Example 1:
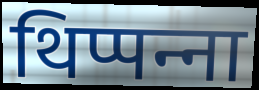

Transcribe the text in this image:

थिप्पन्ना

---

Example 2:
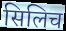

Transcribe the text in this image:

सिलिच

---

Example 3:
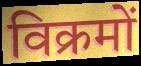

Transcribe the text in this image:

विक्रमों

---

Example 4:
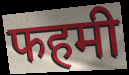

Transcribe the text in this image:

फहमी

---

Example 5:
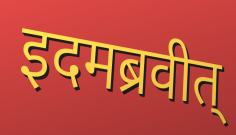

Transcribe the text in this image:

इदमब्रवीत्